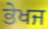
ਭੇਖਜ